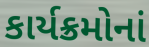
કાર્યક્રમોનાં